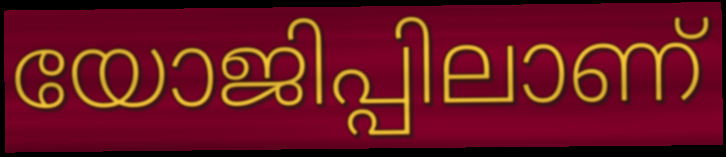
യോജിപ്പിലാണ്